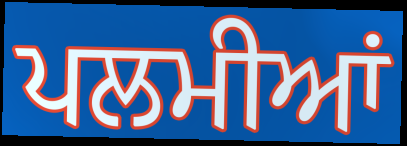
ਪਲਮੀਆਂ